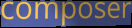
composer